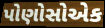
પોણોસોએક